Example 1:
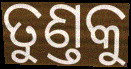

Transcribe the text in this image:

ତୁଣ୍ତକୁ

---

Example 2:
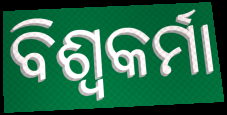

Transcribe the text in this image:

ବିଶ୍ବକର୍ମା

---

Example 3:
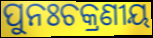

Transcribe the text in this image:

ପୁନଃଚକ୍ରଣୀୟ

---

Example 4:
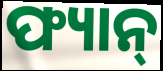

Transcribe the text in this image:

ଫ୍ୟାନ୍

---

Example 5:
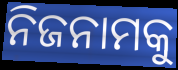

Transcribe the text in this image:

ନିଜନାମକୁ